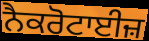
ਨੈਕਰੋਟਾਈਜ਼